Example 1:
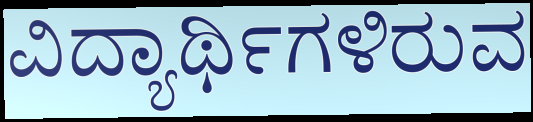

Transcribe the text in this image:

ವಿದ್ಯಾರ್ಥಿಗಳಿರುವ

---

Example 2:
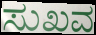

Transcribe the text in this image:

ಸುಖವ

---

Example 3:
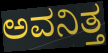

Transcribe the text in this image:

ಅವನಿತ್ತ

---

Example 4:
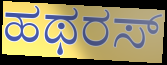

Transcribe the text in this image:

ಹಥರಸ್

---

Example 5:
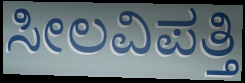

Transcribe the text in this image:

ಸೀಲವಿಪತ್ತಿ